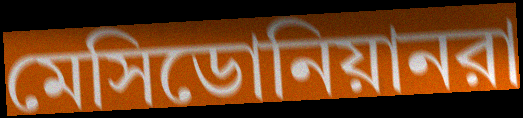
মেসিডোনিয়ানরা